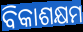
ବିକାଶକ୍ଷମ